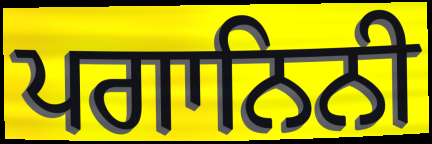
ਪਗਾਨਿਨੀ